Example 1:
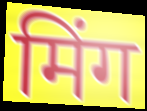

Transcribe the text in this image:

मिंग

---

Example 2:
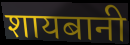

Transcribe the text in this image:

शायबानी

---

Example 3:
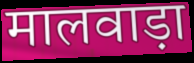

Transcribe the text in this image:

मालवाड़ा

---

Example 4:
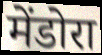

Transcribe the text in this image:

मेंडोरा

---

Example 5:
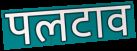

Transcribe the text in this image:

पलटाव